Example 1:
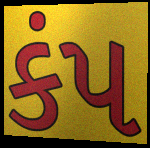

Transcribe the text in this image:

કંપ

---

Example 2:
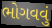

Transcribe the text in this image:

ભોગવવું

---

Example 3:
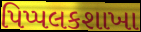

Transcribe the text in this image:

પિપ્પલકશાખા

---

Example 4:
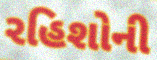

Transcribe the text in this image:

રહિશોની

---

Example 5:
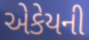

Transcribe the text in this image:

એકેયની